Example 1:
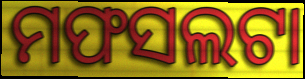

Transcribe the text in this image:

ମଫସଲଟା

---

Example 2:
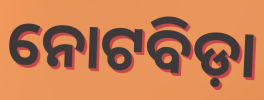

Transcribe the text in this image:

ନୋଟବିଡ଼ା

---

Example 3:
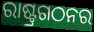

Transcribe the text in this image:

ରାଷ୍ଟ୍ରଗଠନର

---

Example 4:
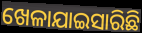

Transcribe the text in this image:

ଖେଳାଯାଇସାରିଛି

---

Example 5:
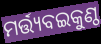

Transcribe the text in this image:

ମର୍ତ୍ତ୍ୟବଇକୁଣ୍ଠ